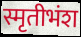
स्मृतीभंश